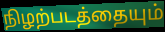
நிழற்படத்தையும்